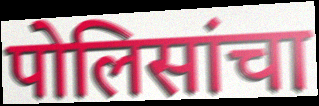
पोलिसांचा